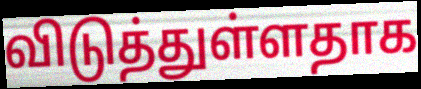
விடுத்துள்ளதாக